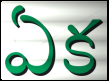
ఏక